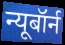
न्यूबॉर्न